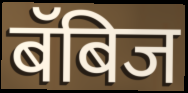
बॅबिज